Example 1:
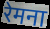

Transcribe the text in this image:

रेमना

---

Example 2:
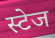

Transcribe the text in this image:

स्टेज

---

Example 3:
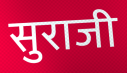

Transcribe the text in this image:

सुराजी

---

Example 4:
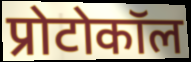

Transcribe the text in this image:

प्रोटोकॉल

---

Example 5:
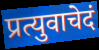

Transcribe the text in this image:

प्रत्युवाचेदं